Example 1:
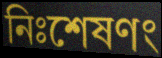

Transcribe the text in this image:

নিঃশেষণং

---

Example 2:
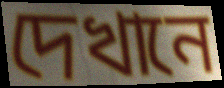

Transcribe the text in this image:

দেখানে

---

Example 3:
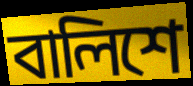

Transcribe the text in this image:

বালিশে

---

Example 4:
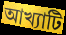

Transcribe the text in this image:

আখ্যাটি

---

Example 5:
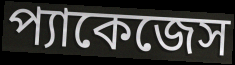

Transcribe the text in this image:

প্যাকেজেস